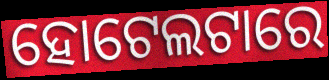
ହୋଟେଲଟାରେ